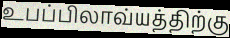
உபப்பிலாவ்யத்திற்கு